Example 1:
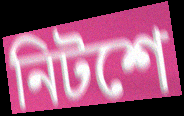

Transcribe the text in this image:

নিটশে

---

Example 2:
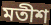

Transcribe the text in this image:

মতীশ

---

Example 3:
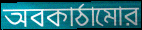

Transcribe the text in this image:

অবকাঠামোর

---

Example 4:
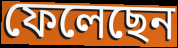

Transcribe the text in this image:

ফেলেছেন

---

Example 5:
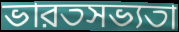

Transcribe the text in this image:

ভারতসভ্যতা